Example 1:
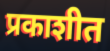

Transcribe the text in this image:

प्रकाशीत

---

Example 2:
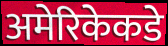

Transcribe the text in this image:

अमेरिकेकडे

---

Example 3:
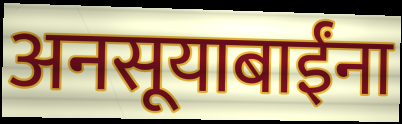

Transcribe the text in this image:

अनसूयाबाईंना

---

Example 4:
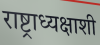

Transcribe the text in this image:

राष्ट्राध्यक्षाशी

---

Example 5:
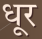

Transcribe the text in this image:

धूर